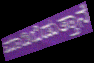
ಮಾಡಿಬಿಡುತ್ತಾನೆ